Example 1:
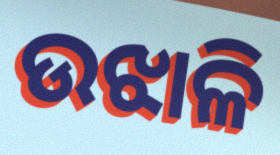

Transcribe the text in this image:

ଉଝାଳି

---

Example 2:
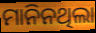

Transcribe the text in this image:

ମାନିନଥିଲା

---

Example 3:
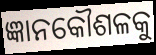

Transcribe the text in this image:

ଜ୍ଞାନକୌଶଳକୁ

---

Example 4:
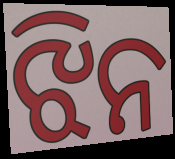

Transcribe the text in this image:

ଝିନ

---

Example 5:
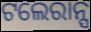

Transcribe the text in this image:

ଟଲେରାନ୍ସ